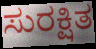
ಸುರಕ್ಷಿತ